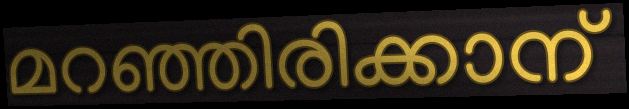
മറഞ്ഞിരിക്കാന്